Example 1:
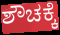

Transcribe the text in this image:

ಶೌಚಕ್ಕೆ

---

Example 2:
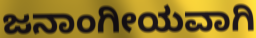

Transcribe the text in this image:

ಜನಾಂಗೀಯವಾಗಿ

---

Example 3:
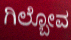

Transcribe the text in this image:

ಗಿಲ್ಬೋವ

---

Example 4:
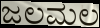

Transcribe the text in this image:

ಜಲಮಲ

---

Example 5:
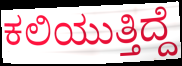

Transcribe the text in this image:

ಕಲಿಯುತ್ತಿದ್ದೆ